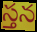
స్తన